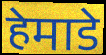
हेमाडे